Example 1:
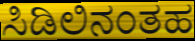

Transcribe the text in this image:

ಸಿಡಿಲಿನಂತಹ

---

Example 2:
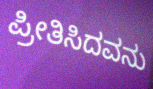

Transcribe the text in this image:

ಪ್ರೀತಿಸಿದವನು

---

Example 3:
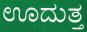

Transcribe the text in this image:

ಊದುತ್ತ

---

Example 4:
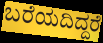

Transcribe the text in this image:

ಬರೆಯದಿದ್ದರೆ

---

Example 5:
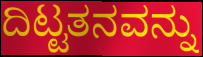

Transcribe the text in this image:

ದಿಟ್ಟತನವನ್ನು